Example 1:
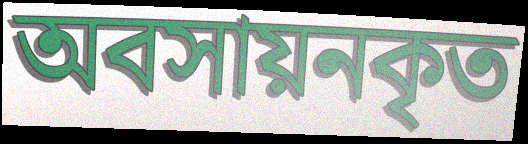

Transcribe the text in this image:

অবসায়নকৃত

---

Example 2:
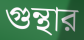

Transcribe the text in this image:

গুন্থার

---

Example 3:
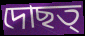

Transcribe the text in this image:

দোছত্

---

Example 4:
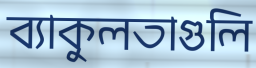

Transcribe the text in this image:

ব্যাকুলতাগুলি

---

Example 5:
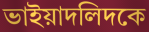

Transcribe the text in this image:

ভাইয়াদলিদকে